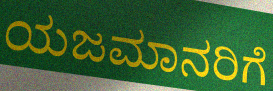
ಯಜಮಾನರಿಗೆ